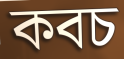
কবচ